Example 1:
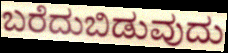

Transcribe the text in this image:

ಬರೆದುಬಿಡುವುದು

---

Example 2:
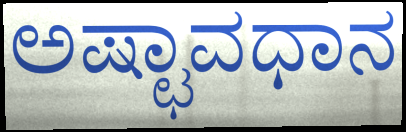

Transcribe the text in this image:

ಅಷ್ಟಾವಧಾನ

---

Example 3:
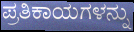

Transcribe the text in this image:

ಪ್ರತಿಕಾಯಗಳನ್ನು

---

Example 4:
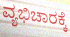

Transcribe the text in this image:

ವ್ಯಭಿಚಾರಕ್ಕೆ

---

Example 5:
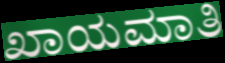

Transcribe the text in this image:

ಖಾಯಮಾತಿ